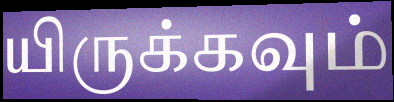
யிருக்கவும்